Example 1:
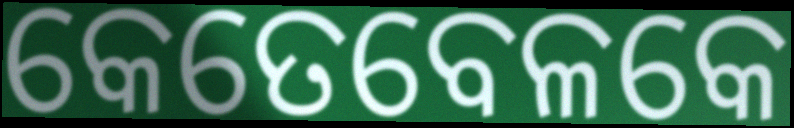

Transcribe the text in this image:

କେତେବେଳକେ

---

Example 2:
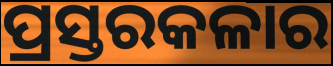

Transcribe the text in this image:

ପ୍ରସ୍ତରକଳାର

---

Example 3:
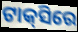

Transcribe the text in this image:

ଟାକ୍‌ସିରେ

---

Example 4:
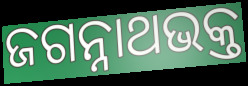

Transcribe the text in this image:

ଜଗନ୍ନାଥଭକ୍ତ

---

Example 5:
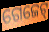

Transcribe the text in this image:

ଗେଜେଟ୍